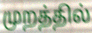
முறத்தில்